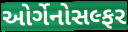
ઓર્ગેનોસલ્ફર